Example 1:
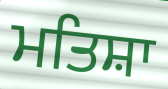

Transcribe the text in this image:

ਮਤਿਸ਼ਾ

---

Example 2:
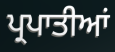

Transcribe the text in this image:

ਪ੍ਰਪਾਤੀਆਂ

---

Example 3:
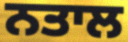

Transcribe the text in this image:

ਨਤਾਲ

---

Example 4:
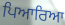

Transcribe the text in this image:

ਪਿਆਰਿਆ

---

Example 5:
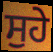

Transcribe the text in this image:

ਸੁਹੇ